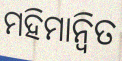
ମହିମାନ୍ୱିତ